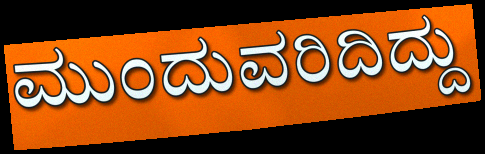
ಮುಂದುವರಿದಿದ್ದು